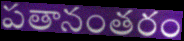
పతానంతరం